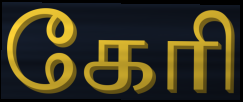
கேரி